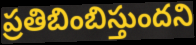
ప్రతిబింబిస్తుందని